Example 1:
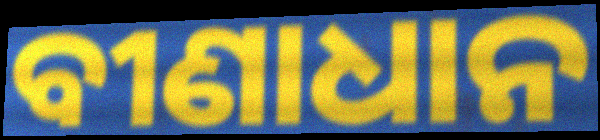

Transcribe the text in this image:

ବୀଣାଧାନ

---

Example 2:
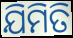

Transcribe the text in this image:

ଯିମିତି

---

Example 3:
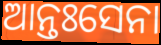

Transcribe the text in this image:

ଆନ୍ତଃସେନା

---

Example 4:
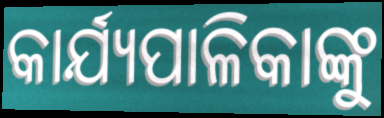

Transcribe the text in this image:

କାର୍ଯ୍ୟପାଳିକାଙ୍କୁ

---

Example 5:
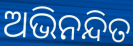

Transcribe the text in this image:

ଅଭିନନ୍ଦିତ